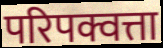
परिपक्वत्ता